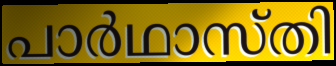
പാർഥാസ്തി